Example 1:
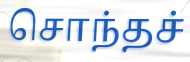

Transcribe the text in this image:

சொந்தச்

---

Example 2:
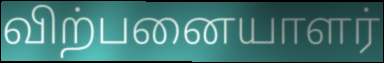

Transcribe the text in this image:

விற்பனையாளர்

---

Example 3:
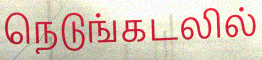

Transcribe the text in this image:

நெடுங்கடலில்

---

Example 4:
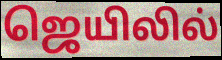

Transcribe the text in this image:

ஜெயிலில்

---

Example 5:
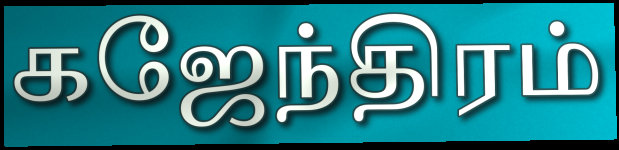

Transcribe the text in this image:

கஜேந்திரம்